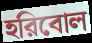
হরিবোল